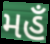
મહઁ